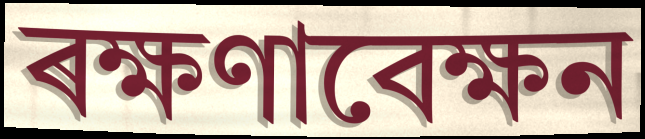
ৰক্ষণাবেক্ষন